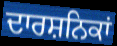
ਦਾਰਸ਼ਨਿਕਾਂ